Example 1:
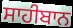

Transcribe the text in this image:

ਸਾਹੀਬਾਨ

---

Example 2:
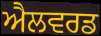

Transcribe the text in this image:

ਐਲਵਰਡ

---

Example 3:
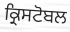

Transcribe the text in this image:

ਕ੍ਰਿਸਟੋਬਲ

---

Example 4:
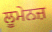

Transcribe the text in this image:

ਲੂਮੇਨਜ਼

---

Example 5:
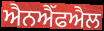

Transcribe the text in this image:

ਐਨਐੱਫਐਲ